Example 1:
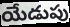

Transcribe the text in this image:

యేడుపు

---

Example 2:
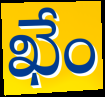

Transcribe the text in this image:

ఖేం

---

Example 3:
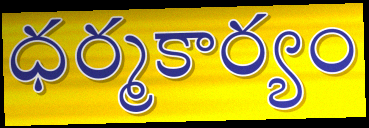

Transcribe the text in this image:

ధర్మకార్యం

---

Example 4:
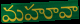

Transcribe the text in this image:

మహూవా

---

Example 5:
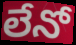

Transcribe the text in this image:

లేనో